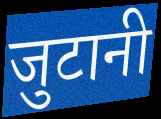
जुटानी